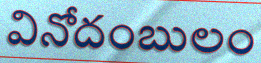
వినోదంబులం